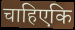
चाहिएकि